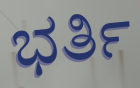
ಭರ್ತಿ